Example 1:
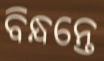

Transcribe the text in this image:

ବିନ୍ଧନ୍ତେ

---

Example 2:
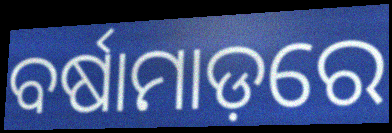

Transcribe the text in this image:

ବର୍ଷାମାଡ଼ରେ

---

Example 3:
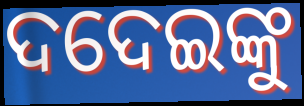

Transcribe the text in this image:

ଦଦେଇଙ୍କୁ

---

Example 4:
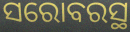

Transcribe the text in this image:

ସରୋବରସ୍ଥ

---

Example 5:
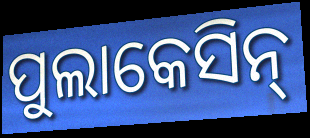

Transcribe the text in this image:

ପୁଲାକେସିନ୍